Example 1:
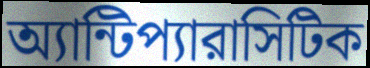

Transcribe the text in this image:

অ্যান্টিপ্যারাসিটিক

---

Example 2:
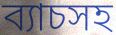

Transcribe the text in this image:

ব্যাচসহ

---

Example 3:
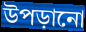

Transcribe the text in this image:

উপড়ানো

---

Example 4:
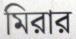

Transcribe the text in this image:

মিরার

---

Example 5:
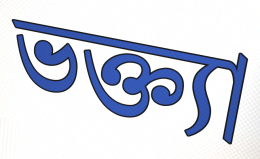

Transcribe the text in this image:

ভক্ত্যা